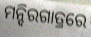
ମନ୍ଦିରଗାତ୍ରରେ